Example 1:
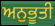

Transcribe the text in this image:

ਅਨੁਭੂਤੀ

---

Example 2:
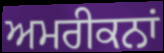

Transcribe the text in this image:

ਅਮਰੀਕਨਾਂ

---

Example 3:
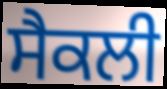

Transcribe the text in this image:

ਸੈਕਲੀ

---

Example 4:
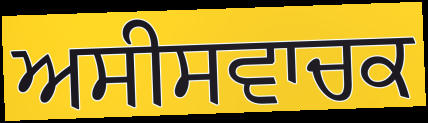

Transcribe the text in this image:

ਅਸੀਸਵਾਚਕ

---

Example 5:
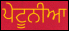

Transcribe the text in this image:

ਪੇਟੂਨੀਆ